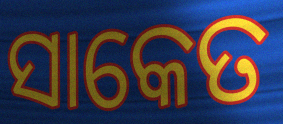
ସାକେତ